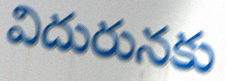
విదురునకు